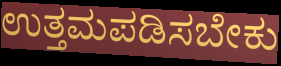
ಉತ್ತಮಪಡಿಸಬೇಕು